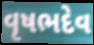
વૃષભદેવ